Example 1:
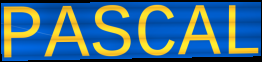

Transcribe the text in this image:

PASCAL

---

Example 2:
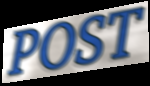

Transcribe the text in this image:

POST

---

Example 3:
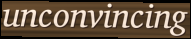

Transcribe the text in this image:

unconvincing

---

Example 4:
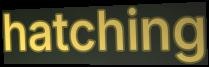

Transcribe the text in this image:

hatching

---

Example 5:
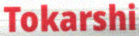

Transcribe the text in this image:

Tokarshi